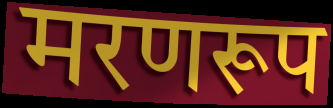
मरणरूप